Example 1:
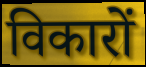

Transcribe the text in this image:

विकारों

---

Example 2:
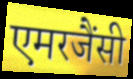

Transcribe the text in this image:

एमरजैंसी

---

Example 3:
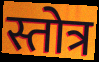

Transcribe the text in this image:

स्तोत्र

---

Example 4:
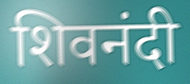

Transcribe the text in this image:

शिवनंदी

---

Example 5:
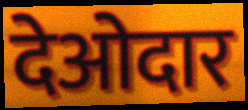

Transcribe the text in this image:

देओदार